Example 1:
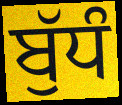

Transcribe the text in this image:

ਬੁੱਧੰ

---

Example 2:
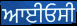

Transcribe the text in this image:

ਆਈਓਸੀ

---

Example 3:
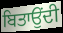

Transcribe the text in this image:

ਬਿਤਾਉਂਦੀ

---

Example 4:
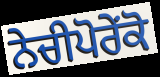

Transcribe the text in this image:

ਨੇਚੀਪੋਰੇਂਕੋ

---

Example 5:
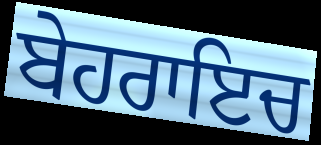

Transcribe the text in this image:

ਬੇਹਰਾਇਚ